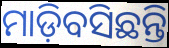
ମାଡ଼ିବସିଛନ୍ତି